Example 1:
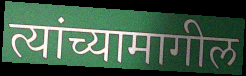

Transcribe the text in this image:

त्यांच्यामागील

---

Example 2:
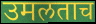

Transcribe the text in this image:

उमलताच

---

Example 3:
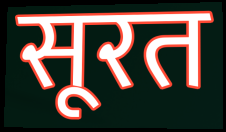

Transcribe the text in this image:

सूरत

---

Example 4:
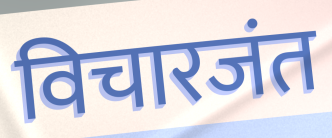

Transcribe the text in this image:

विचारजंत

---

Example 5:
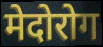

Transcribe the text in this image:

मेदोरोग